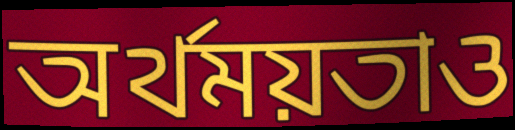
অর্থময়তাও